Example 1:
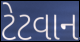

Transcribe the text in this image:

ટેટવાન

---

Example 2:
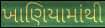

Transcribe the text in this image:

ખાણિયામાંથી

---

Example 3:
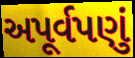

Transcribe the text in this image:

અપૂર્વપણું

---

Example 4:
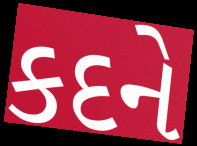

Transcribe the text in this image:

કદને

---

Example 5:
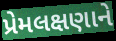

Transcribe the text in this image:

પ્રેમલક્ષણાને